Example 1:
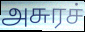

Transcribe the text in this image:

அசுரச்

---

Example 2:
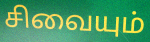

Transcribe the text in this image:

சிவையும்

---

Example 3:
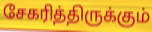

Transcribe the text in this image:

சேகரித்திருக்கும்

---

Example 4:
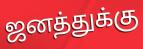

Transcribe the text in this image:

ஜனத்துக்கு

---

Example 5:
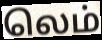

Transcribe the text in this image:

லெம்